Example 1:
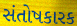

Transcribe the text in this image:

સંતોષકારક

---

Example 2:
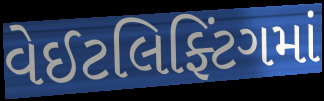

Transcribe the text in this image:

વેઈટલિફ્ટિંગમાં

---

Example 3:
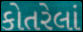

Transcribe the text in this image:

કોતરેલાં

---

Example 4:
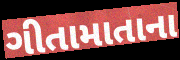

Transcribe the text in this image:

ગીતામાતાના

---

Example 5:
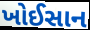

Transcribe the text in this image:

ખોઈસાન